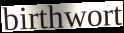
birthwort